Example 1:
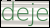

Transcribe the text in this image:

deje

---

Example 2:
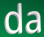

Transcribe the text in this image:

da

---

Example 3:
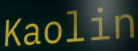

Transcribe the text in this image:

Kaolin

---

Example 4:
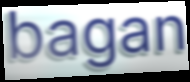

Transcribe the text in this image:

bagan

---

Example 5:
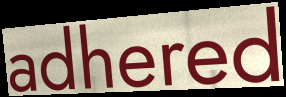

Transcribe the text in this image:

adhered